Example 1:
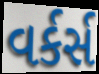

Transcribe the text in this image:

વર્કર્સ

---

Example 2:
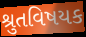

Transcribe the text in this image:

શ્રુતવિષયક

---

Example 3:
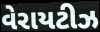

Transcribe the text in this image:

વેરાયટીઝ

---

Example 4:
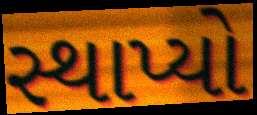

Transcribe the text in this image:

સ્થાપ્યો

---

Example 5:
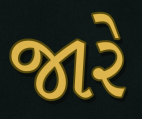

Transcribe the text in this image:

જારે